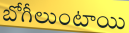
బోగీలుంటాయి